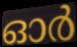
ഓർ